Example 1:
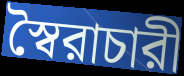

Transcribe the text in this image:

স্বৈরাচারী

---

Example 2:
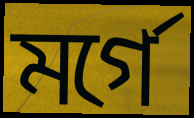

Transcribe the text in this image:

মর্গে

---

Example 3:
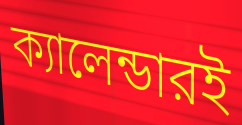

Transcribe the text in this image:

ক্যালেন্ডারই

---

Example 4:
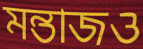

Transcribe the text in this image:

মন্তাজও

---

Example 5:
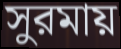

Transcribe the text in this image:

সুরমায়